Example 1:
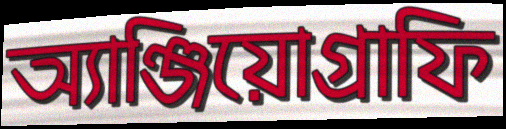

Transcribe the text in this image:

অ্যাঞ্জিয়োগ্রাফি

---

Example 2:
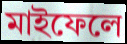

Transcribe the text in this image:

মাইফেলে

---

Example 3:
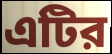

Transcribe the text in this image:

এটির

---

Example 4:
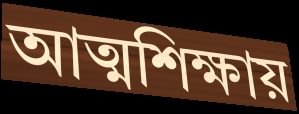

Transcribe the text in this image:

আত্মশিক্ষায়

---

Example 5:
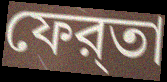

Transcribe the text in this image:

ফের্‌তা